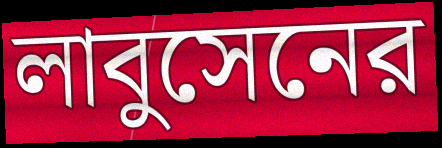
লাবুসেনের